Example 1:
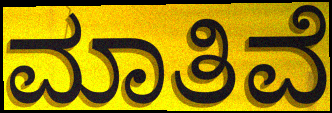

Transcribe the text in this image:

ಮಾತಿವೆ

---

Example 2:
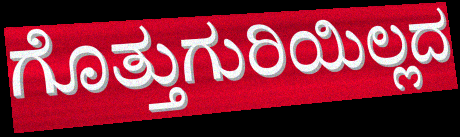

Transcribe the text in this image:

ಗೊತ್ತುಗುರಿಯಿಲ್ಲದ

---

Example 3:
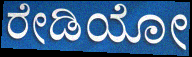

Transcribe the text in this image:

ರೇಡಿಯೋ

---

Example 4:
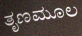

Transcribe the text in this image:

ತೃಣಮೂಲ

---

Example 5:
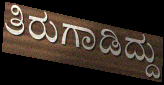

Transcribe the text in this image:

ತಿರುಗಾಡಿದ್ದು